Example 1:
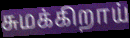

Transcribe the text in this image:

சுமக்கிறாய்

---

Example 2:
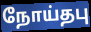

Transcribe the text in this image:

நோய்தபு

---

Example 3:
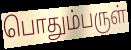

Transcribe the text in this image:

பொதும்பருள்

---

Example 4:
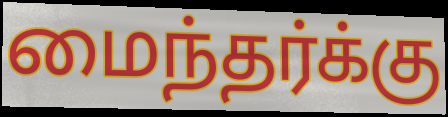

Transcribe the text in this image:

மைந்தர்க்கு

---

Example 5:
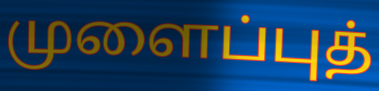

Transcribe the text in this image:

முளைப்புத்